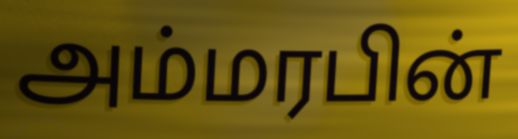
அம்மரபின்